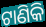
ଟାଣିକି